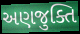
અણજુક્તિ